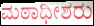
ಮಠಾಧೀಶರು